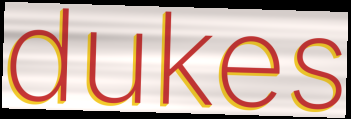
dukes